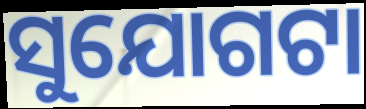
ସୁଯୋଗଟା